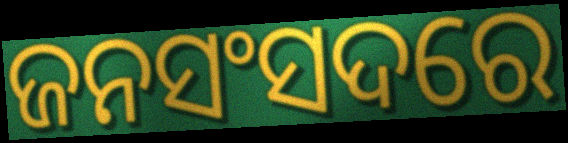
ଜନସଂସଦରେ